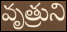
వృత్రుని